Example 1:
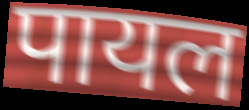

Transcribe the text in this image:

पायल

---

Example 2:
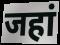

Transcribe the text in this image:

जहां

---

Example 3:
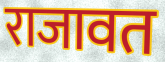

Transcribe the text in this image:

राजावत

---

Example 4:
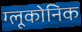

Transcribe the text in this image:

ग्लूकोनिक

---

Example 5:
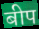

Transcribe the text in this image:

बीप